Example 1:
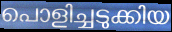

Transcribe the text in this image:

പൊളിച്ചടുക്കിയ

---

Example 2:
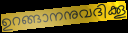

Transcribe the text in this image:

ഉറങ്ങാനനുവദിക്കൂ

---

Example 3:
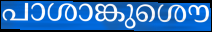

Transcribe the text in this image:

പാശാങ്കുശൌ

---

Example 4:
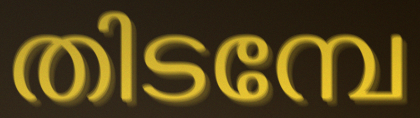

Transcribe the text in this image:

തിടമ്പേ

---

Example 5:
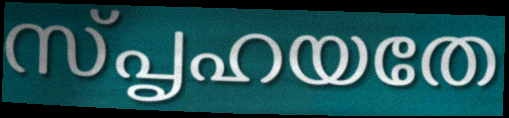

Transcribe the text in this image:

സ്പൃഹയതേ